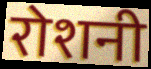
रोशनी